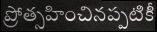
ప్రోత్సహించినప్పటికీ